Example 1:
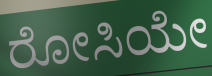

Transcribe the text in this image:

ರೋಸಿಯೇ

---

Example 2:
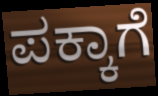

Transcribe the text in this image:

ಪಕ್ಕಾಗೆ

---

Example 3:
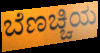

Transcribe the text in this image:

ಬೆಣಚ್ಚಿಯ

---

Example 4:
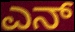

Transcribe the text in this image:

ಎನ್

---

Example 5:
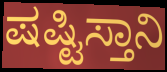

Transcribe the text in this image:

ಷಷ್ಟಿಸ್ತಾನಿ